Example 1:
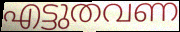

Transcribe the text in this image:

എട്ടുതവണ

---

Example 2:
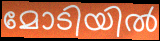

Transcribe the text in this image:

മോടിയിൽ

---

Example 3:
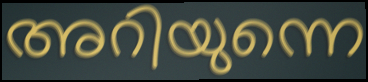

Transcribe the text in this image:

അറിയുന്നെ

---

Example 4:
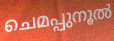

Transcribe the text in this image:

ചെമപ്പുനൂൽ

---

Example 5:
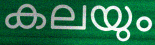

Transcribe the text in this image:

കലയും